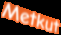
Metkut